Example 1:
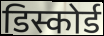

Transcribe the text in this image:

डिस्कोर्ड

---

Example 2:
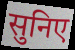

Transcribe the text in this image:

सुनिए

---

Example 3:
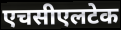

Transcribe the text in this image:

एचसीएलटेक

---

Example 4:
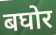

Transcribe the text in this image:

बघोर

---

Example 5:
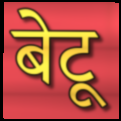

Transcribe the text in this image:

बेटू